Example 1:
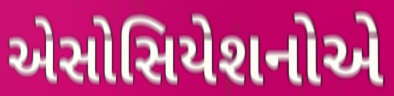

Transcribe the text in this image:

એસોસિયેશનોએ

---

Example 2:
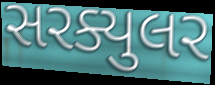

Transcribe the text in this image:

સરક્યુલર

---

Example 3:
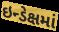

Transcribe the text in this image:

ઇન્ડેક્ષમાં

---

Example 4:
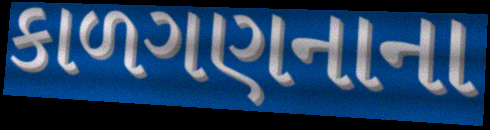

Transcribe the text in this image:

કાળગણનાના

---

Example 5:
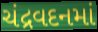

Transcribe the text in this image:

ચંદ્રવદનમાં